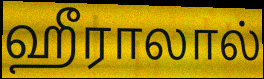
ஹீராலால்